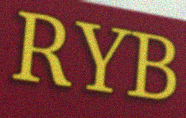
RYB